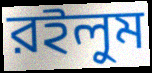
রইলুম